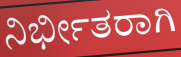
ನಿರ್ಭೀತರಾಗಿ